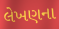
લેખણના